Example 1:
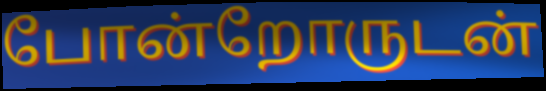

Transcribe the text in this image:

போன்றோருடன்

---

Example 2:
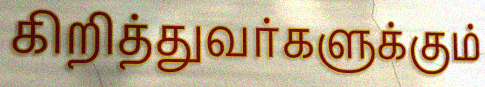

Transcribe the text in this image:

கிறித்துவர்களுக்கும்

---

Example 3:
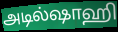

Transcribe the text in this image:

அடில்ஷாஹி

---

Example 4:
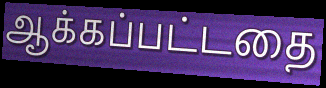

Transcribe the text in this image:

ஆக்கப்பட்டதை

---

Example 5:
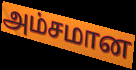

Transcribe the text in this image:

அம்சமான